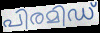
പിരമിഡ്